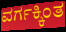
ವರ್ಗಕ್ಕಿಂತ